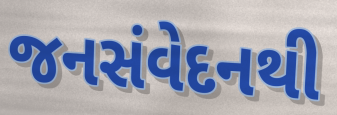
જનસંવેદનથી